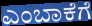
ಎಂಬಾಕೆಗೆ